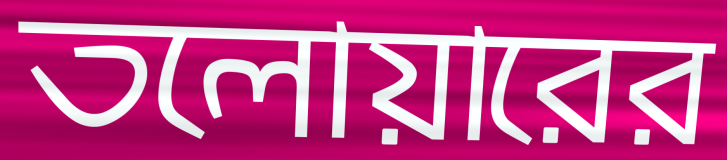
তলোয়ারের